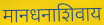
मानधनाशिवाय